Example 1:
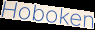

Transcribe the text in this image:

Hoboken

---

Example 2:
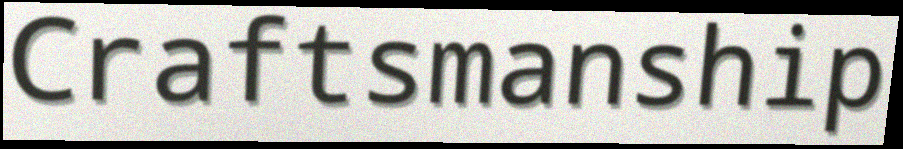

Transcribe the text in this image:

Craftsmanship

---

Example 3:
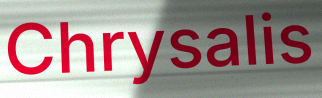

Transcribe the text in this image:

Chrysalis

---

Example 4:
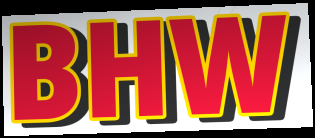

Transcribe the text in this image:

BHW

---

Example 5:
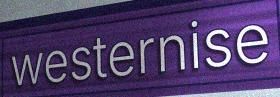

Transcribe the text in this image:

westernise